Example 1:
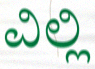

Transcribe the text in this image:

ವಿಲ್ಲಿ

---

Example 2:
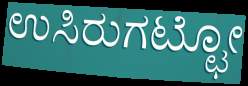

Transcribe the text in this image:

ಉಸಿರುಗಟ್ಟೋ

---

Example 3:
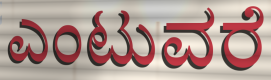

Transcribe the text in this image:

ಎಂಟುವರೆ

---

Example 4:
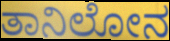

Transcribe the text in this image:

ತಾನಿಲೋನ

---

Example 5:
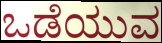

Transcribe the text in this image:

ಒಡೆಯುವ